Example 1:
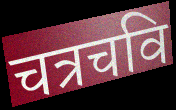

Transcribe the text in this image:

चत्रचवि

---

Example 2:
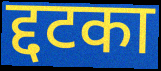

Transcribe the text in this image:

द्दटका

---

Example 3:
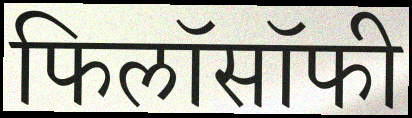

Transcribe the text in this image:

फिलॉसॉफी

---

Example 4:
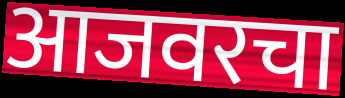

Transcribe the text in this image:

आजवरचा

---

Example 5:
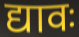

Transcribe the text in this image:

द्यावः